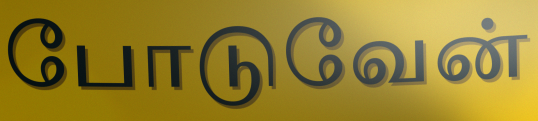
போடுவேன்